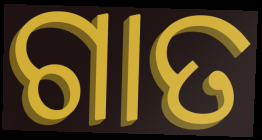
ଗାତ